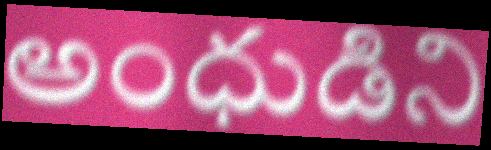
అంధుడిని